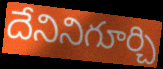
దేనినిగూర్చి